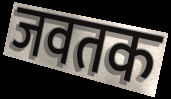
जवतक